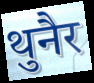
थुनैर